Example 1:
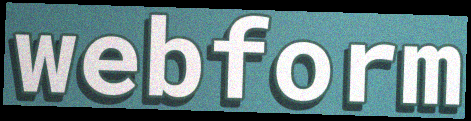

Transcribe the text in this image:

webform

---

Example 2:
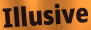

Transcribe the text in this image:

Illusive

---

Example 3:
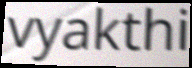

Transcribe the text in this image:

vyakthi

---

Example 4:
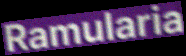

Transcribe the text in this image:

Ramularia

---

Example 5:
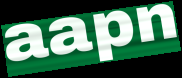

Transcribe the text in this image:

aapn